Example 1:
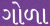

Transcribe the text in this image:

ગોળા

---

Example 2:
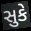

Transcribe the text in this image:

સુકે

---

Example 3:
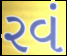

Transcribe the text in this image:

રવં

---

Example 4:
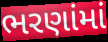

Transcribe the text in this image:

ભરણાંમાં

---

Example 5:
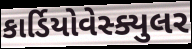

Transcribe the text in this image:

કાર્ડિયોવેસ્ક્યુલર